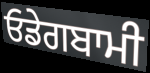
ਓਡੇਗਬਾਮੀ